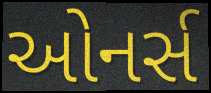
ઓનર્સ